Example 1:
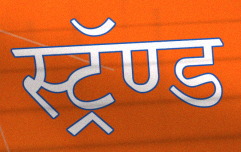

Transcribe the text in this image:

स्ट्रॅण्ड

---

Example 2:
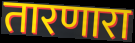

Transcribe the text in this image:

तारणारा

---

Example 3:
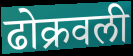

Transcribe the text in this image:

ढोक्रवली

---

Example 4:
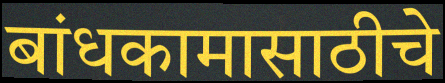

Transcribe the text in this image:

बांधकामासाठीचे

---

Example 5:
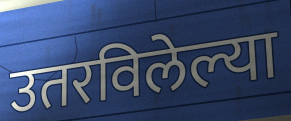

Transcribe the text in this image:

उतरविलेल्या